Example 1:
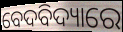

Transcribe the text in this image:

ବେଦବିଦ୍ୟାରେ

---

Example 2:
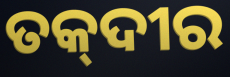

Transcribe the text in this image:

ତକ୍‌ଦୀର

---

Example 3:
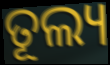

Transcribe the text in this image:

ତୂଲ୍ୟ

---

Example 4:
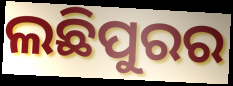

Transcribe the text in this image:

ଲଛିପୁରର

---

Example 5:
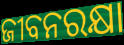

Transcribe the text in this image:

ଜୀବନରକ୍ଷା